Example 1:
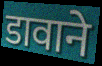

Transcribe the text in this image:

डावाने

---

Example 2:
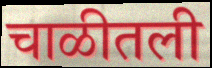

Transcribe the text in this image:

चाळीतली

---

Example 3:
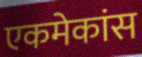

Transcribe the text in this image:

एकमेकांस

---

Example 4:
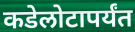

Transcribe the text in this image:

कडेलोटापर्यंत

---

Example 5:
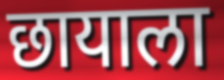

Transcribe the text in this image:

छायाला